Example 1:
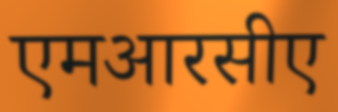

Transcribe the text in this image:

एमआरसीए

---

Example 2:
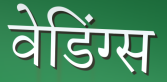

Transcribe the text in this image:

वेडिंग्स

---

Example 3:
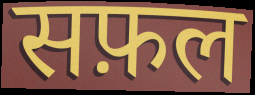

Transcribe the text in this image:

सफ़ल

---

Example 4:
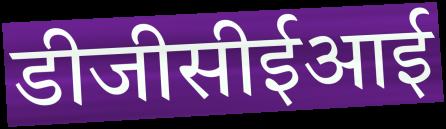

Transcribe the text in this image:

डीजीसीईआई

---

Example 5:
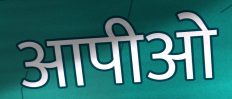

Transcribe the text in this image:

आपीओ